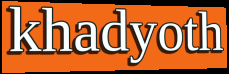
khadyoth